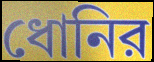
ধোনির